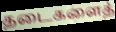
தடைகளைத்